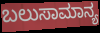
ಬಲುಸಾಮಾನ್ಯ